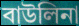
বাউলিনা